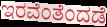
ಇರವೆಂತೆಂದಡೆ